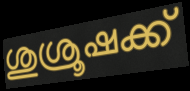
ശുശ്രൂഷക്ക്